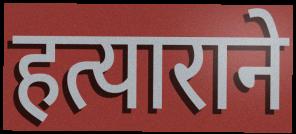
हत्याराने